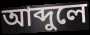
আব্দুলে